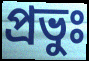
প্রভুঃ